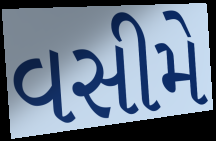
વસીમે